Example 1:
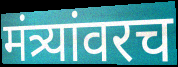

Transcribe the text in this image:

मंत्र्यांवरच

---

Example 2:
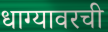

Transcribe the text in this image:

धाग्यावरची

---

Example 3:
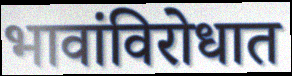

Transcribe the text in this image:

भावांविरोधात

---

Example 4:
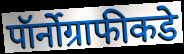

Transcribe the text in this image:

पॉर्नोग्राफीकडे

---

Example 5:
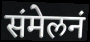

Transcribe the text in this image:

संमेलनं